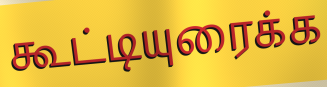
கூட்டியுரைக்க